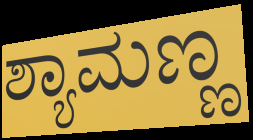
ಶ್ಯಾಮಣ್ಣ